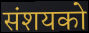
संशयको